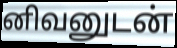
னிவனுடன்